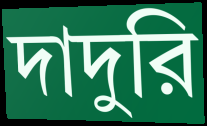
দাদুরি